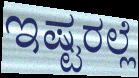
ಇಷ್ಟರಲ್ಲೆ